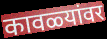
कावळ्यांवर